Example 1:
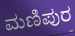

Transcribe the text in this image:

ಮಣಿಪುರ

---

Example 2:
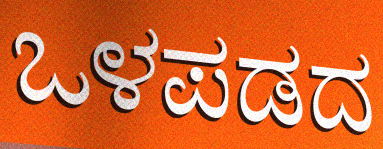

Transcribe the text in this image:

ಒಳಪಡದ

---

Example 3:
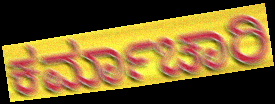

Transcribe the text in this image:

ಕರ್ಮಾಚಾರಿ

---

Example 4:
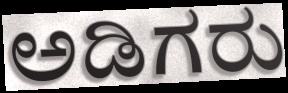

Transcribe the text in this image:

ಅಡಿಗರು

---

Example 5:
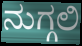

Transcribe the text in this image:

ನುಗ್ಗಲಿ